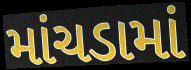
માંચડામાં